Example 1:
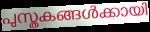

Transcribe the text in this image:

പുസ്തകങ്ങൾക്കായി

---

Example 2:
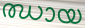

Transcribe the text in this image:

ഝായ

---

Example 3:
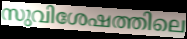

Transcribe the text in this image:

സുവിശേഷത്തിലെ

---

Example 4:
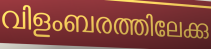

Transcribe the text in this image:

വിളംബരത്തിലേക്കു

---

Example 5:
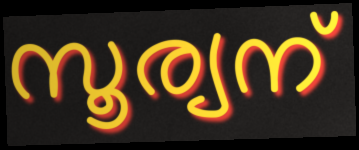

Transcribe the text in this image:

സൂര്യന്